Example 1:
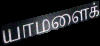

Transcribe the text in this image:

யாமளைக்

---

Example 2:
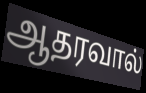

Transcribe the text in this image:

ஆதரவால்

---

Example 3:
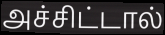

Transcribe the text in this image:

அச்சிட்டால்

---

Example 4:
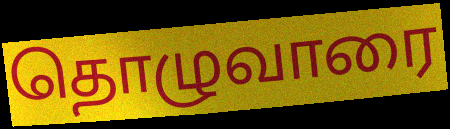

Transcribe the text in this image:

தொழுவாரை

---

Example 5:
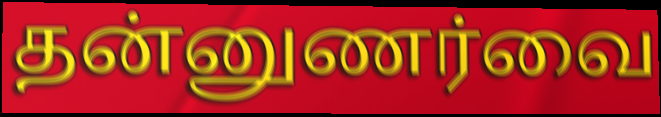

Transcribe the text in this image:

தன்னுணர்வை